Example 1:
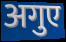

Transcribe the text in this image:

अगुए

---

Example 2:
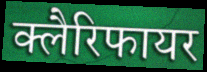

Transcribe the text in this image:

क्लैरिफायर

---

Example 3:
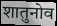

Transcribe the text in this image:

शातुनोव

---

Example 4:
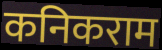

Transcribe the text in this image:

कनिकराम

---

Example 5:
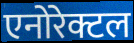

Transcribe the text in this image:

एनोरेक्टल